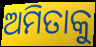
ଅମିତାକୁ